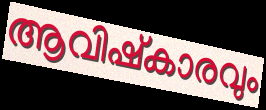
ആവിഷ്കാരവും